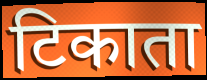
टिकाता